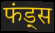
फंड्‌स